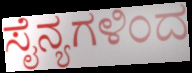
ಸೈನ್ಯಗಳಿಂದ